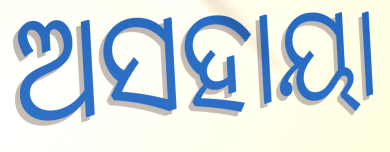
ଅସହାୟା